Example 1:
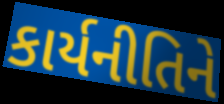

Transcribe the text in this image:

કાર્યનીતિને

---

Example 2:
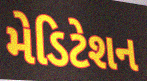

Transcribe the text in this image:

મેડિટેશન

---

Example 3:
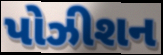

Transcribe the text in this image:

પોઝીશન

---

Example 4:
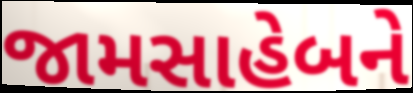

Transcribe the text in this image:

જામસાહેબને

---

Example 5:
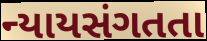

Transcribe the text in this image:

ન્યાયસંગતતા